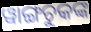
ୱାଙ୍ଗଚୁକଙ୍କ